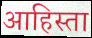
आहिस्ता